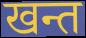
खन्त